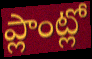
ప్లాంట్లో